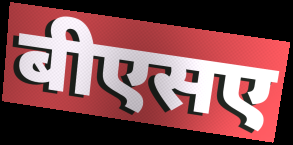
बीएसए